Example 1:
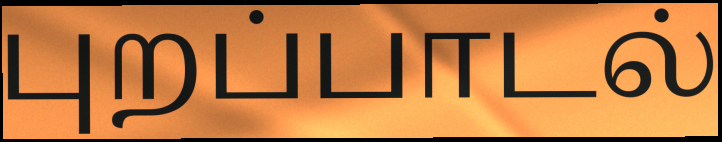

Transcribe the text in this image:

புறப்பாடல்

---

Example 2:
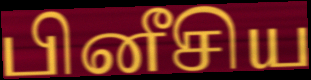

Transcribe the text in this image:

பினீசிய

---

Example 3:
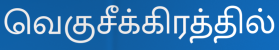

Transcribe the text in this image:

வெகுசீக்கிரத்தில்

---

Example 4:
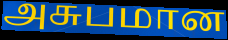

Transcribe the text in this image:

அசுபமான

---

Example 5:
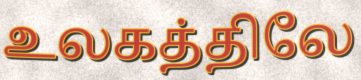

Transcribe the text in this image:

உலகத்திலே